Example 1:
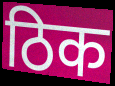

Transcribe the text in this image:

ठिक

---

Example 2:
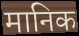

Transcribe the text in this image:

मानिक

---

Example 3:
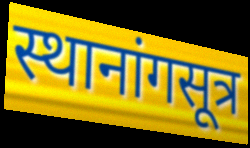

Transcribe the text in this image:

स्थानांगसूत्र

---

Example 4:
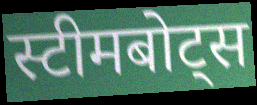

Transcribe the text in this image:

स्टीमबोट्स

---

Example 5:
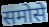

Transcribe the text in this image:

समोसे